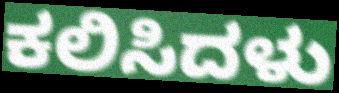
ಕಲಿಸಿದಳು